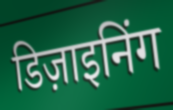
डिज़ाइनिंग